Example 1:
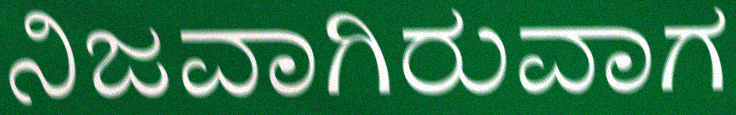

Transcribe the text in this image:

ನಿಜವಾಗಿರುವಾಗ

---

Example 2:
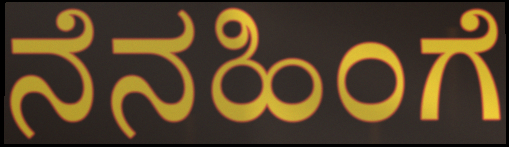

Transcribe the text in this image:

ನೆನಹಿಂಗೆ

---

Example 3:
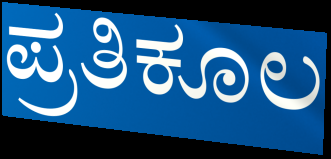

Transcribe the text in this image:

ಪ್ರತಿಕೂಲ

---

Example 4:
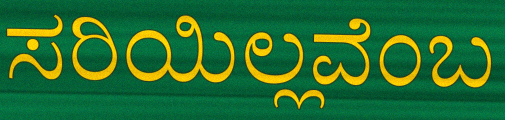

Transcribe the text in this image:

ಸರಿಯಿಲ್ಲವೆಂಬ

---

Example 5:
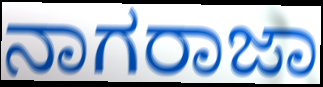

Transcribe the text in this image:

ನಾಗರಾಜಾ